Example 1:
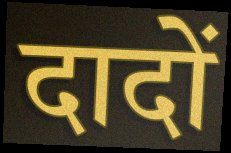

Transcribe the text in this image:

दादों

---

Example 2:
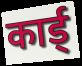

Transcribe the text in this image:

कार्ड्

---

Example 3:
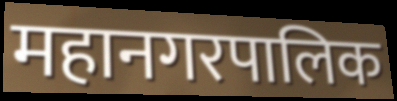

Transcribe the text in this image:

महानगरपालिक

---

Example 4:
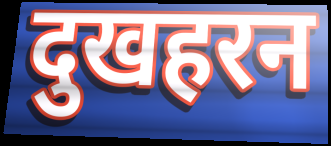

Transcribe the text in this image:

दुखहरन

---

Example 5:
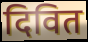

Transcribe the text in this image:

दिवित